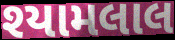
શ્યામલાલ